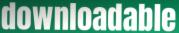
downloadable